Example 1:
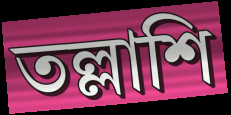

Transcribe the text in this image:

তল্লাশি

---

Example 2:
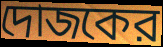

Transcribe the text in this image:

দোজকের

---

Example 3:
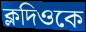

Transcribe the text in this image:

ক্লদিওকে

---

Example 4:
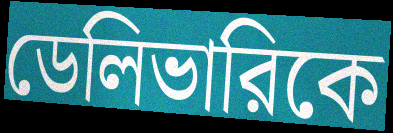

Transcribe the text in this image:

ডেলিভারিকে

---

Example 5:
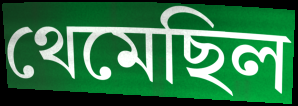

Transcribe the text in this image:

থেমেছিল